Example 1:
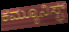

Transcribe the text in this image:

ಕಮ್ಯೂನಿಸ್ಟ್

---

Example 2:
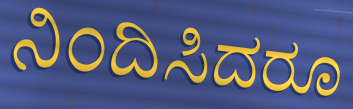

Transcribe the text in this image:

ನಿಂದಿಸಿದರೂ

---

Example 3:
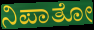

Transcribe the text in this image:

ನಿಪಾತೋ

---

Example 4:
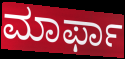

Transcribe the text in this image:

ಮಾರ್ಫಾ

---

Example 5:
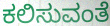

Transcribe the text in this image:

ಕಲಿಸುವಂತೆ